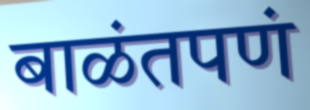
बाळंतपणं